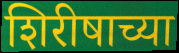
शिरीषाच्या